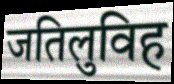
जतिलुविह